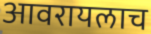
आवरायलाच